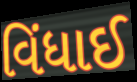
વિંધાઈ